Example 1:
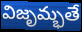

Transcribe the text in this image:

విజృమ్భతే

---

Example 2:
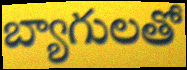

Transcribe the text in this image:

బ్యాగులతో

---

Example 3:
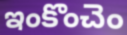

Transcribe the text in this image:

ఇంకొంచెం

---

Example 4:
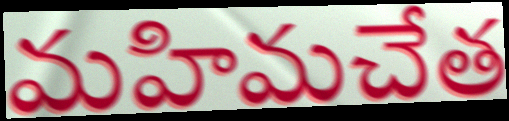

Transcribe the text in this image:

మహిమచేత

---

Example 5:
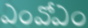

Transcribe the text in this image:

ఎంవోఎం